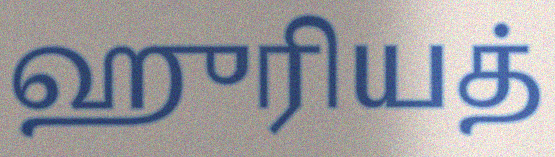
ஹுரியத்